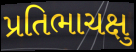
પ્રતિભાચક્ષુ